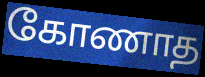
கோணாத